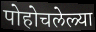
पोहोचलेल्या